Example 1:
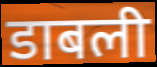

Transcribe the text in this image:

डाबली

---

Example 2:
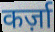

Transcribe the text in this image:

कर्ज़ा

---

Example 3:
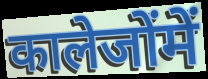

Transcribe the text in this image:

कालेजोंमें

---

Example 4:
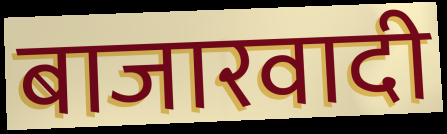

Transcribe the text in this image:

बाजारवादी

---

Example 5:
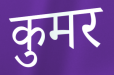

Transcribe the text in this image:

कुमर